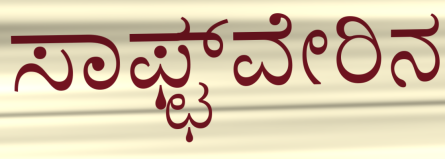
ಸಾಫ್ಟ್‌ವೇರಿನ